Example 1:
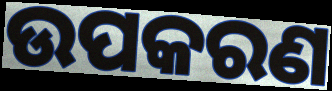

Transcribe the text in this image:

ଉପକରଣ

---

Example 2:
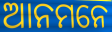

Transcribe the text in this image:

ଆନମନେ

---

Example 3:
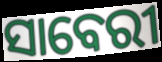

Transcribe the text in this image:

ସାବେରୀ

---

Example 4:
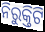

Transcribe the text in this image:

ନିରୁକ୍ତିଟି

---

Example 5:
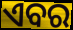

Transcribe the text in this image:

ଏବର